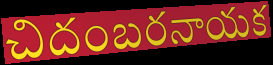
చిదంబరనాయక